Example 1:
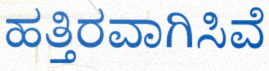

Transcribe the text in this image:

ಹತ್ತಿರವಾಗಿಸಿವೆ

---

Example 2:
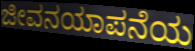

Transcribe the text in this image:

ಜೀವನಯಾಪನೆಯ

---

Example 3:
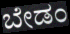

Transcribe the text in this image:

ಬೇಡಂ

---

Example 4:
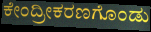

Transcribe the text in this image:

ಕೇಂದ್ರೀಕರಣಗೊಂಡು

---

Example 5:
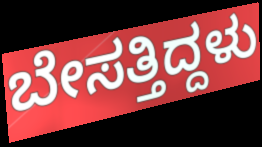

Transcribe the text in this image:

ಬೇಸತ್ತಿದ್ದಳು